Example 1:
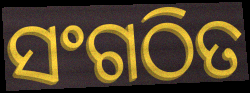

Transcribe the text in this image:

ସଂଗଠିତ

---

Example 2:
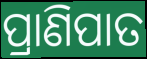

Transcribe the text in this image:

ପ୍ରାଣିପାତ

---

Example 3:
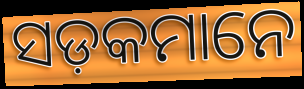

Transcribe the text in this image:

ସଡ଼କମାନେ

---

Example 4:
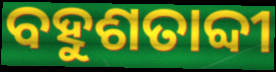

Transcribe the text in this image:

ବହୁଶତାବ୍ଦୀ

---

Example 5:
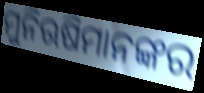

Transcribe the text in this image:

ମୁନିଋଷିମାନଙ୍କର